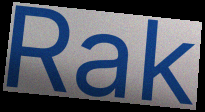
Rak